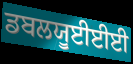
ਡਬਲਯੂਈਈਈ